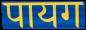
पायग